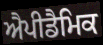
ਐਪੀਡੈਮਿਕ